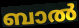
ബാൽ